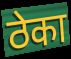
ठेका